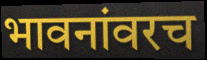
भावनांवरच